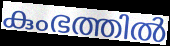
കുംഭത്തിൽ